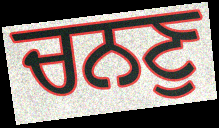
ਚਨਣੁ